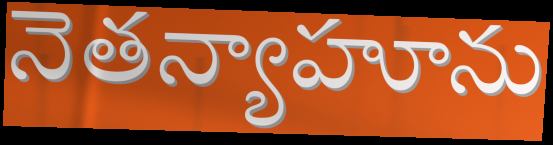
నెతన్యాహూను